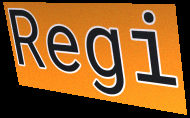
Regi